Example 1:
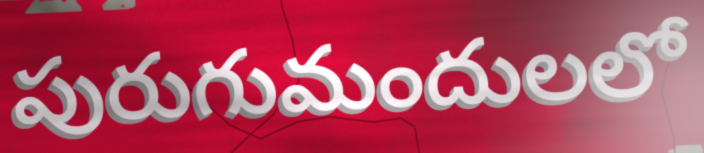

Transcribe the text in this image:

పురుగుమందులలో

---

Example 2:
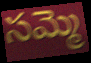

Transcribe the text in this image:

సమ్మె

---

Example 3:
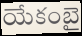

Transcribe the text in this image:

యేకంబై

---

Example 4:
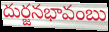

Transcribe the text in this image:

దుర్జనభావంబు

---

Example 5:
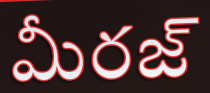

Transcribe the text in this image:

మీరజ్